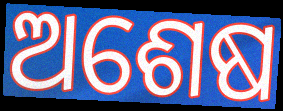
ଅଶେଷ